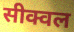
सीक्वल